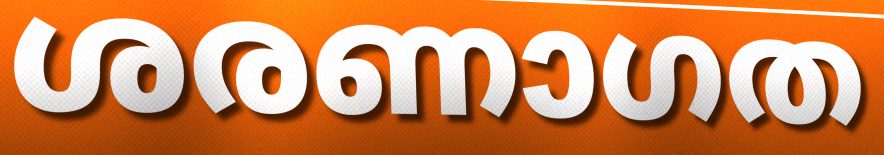
ശരണാഗത